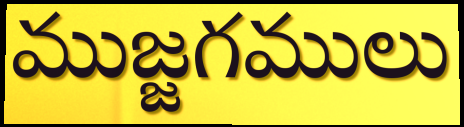
ముజ్జగములు